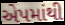
એપમાંથી